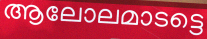
ആലോലമാടട്ടെ